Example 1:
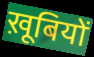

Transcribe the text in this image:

ख़ूबियों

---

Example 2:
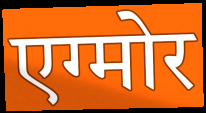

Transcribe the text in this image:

एग्मोर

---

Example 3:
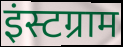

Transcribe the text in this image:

इंस्टग्राम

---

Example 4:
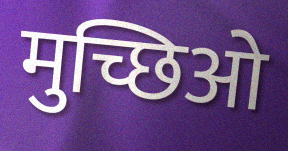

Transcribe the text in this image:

मुच्छिओ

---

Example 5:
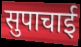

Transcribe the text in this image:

सुपाचाई